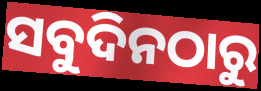
ସବୁଦିନଠାରୁ